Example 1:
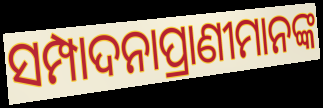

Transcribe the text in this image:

ସମ୍ପାଦନାପ୍ରାଣୀମାନଙ୍କ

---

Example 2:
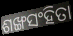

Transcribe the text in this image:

ଶଙ୍ଖସଂହିତା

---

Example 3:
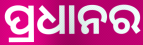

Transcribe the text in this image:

ପ୍ରଧାନର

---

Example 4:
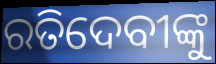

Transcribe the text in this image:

ରତିଦେବୀଙ୍କୁ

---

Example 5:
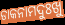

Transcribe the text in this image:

ଡାକନାମଦୁଃଖୁ